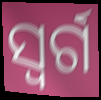
ସ୍ବର୍ଗ